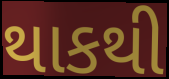
થાકથી